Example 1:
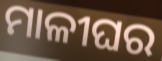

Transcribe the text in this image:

ମାଳୀଘର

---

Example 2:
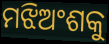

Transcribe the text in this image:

ମଝିଅଂଶକୁ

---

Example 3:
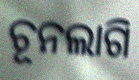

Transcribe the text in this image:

ଚୂନଲାଗି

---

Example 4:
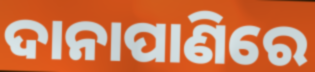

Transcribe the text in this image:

ଦାନାପାଣିରେ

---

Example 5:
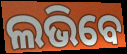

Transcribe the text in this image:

ଲଭିବେ